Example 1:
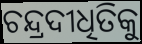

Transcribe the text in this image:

ଚନ୍ଦ୍ରଦୀଧିତିକୁ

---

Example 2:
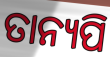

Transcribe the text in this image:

ତାନ୍ୟପି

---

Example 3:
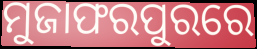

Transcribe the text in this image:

ମୁଜାଫରପୁରରେ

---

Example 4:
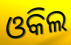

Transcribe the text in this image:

ଓକିଲ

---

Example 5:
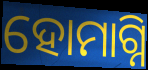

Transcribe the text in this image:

ହୋମାଗ୍ନି